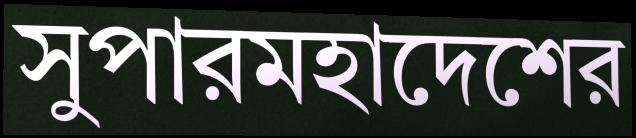
সুপারমহাদেশের